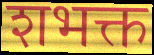
शभक्त